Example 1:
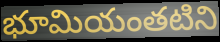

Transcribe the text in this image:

భూమియంతటిని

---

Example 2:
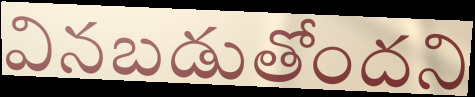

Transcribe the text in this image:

వినబడుతోందని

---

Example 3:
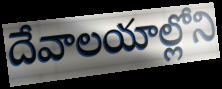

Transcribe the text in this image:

దేవాలయాల్లోని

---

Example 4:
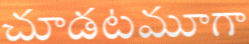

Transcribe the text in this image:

చూడటమూగా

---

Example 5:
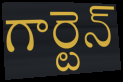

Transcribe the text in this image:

గార్టెన్